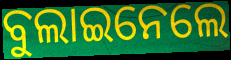
ବୁଲାଇନେଲେ